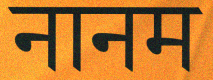
नानम